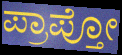
ಪ್ರಾಪ್ತೋ